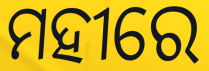
ମହୀରେ